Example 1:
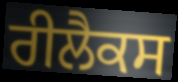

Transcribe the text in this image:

ਰੀਲੈਕਸ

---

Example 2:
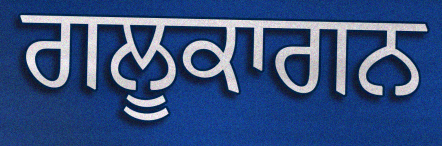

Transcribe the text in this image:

ਗਲੂਕਾਗਨ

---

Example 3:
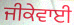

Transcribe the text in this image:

ਜੀਕੇਵਾਈ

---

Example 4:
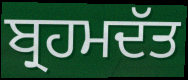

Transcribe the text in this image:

ਬ੍ਰਹਮਦੱਤ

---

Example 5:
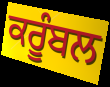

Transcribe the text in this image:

ਕਰੂੰਬਲ